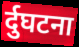
र्दुघटना